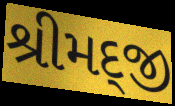
શ્રીમદ્જી